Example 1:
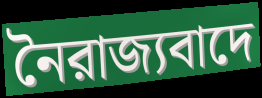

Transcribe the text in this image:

নৈরাজ্যবাদে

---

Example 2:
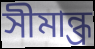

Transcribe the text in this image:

সীমান্ধ্র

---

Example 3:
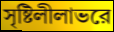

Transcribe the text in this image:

সৃষ্টিলীলাভরে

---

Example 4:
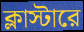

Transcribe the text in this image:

ক্লাস্টারে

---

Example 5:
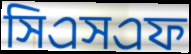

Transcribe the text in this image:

সিএসএফ